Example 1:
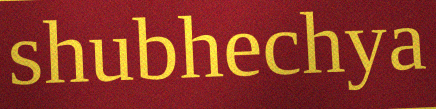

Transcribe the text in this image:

shubhechya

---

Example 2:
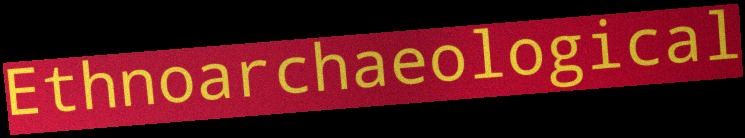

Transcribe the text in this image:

Ethnoarchaeological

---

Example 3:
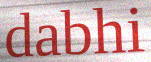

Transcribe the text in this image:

dabhi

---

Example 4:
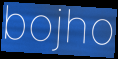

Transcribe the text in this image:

bojho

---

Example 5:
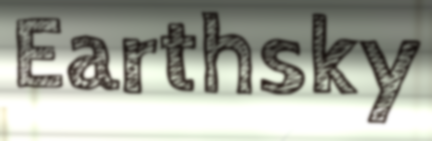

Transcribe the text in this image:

Earthsky